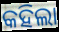
କହିଲା